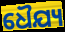
ଧୈଯ୍ୟ